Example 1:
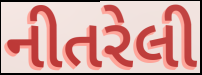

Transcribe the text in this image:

નીતરેલી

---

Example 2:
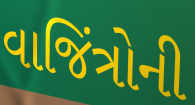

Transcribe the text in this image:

વાજિંત્રોની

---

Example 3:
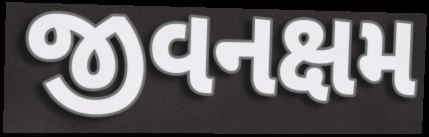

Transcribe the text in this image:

જીવનક્ષમ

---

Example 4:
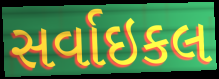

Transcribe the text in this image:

સર્વાઇકલ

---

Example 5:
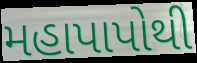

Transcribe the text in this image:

મહાપાપોથી